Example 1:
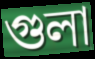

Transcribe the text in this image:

গুলা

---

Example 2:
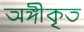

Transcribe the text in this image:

অঙ্গীকৃত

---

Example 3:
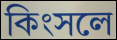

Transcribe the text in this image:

কিংসলে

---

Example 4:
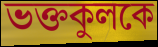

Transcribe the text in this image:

ভক্তকুলকে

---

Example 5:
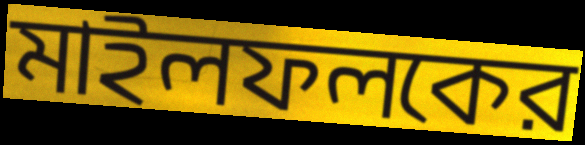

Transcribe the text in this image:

মাইলফলকের